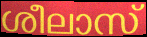
ശീലാസ്